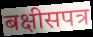
बक्षीसपत्र